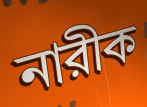
নারীক